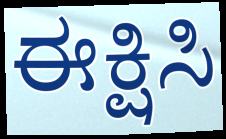
ಈಕ್ಷಿಸಿ